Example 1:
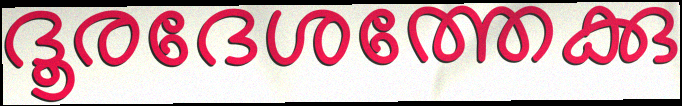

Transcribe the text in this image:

ദൂരദേശത്തേക്കു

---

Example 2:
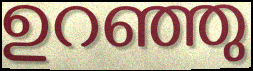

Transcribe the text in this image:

ഉറഞ്ഞു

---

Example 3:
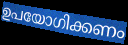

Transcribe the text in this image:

ഉപയോഗിക്കണം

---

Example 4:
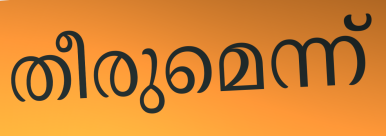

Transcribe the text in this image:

തീരുമെന്ന്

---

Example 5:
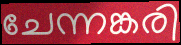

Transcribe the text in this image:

ചേന്നങ്കരി